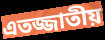
এতজ্জাতীয়